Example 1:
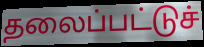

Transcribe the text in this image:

தலைப்பட்டுச்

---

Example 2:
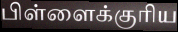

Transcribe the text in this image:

பிள்ளைக்குரிய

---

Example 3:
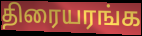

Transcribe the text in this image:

திரையரங்க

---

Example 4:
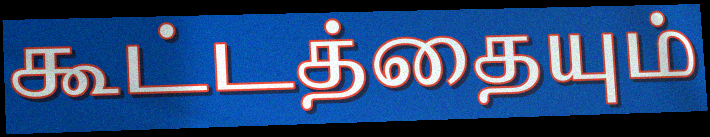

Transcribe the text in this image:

கூட்டத்தையும்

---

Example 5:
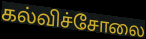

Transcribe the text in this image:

கல்விச்சோலை